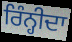
ਰਿੰਨ੍ਹੀਦਾ